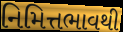
નિમિત્તભાવથી